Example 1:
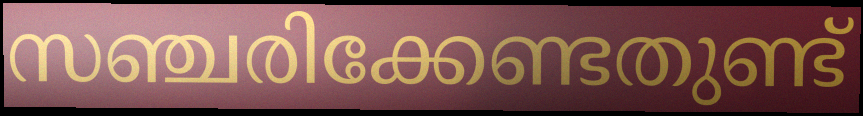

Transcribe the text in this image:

സഞ്ചരിക്കേണ്ടതുണ്ട്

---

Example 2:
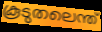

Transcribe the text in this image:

കൂടുതലെന്ത്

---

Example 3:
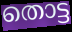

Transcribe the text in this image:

തൊട്ട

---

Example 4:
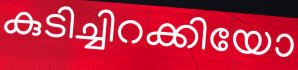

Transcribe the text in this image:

കുടിച്ചിറക്കിയോ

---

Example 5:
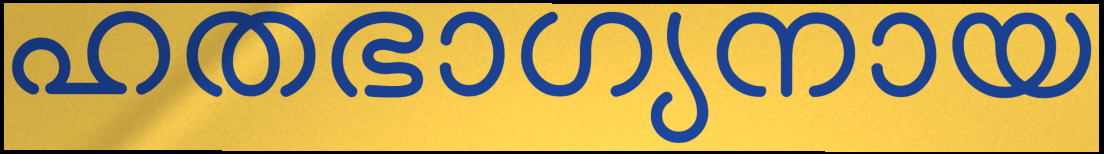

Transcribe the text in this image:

ഹതഭാഗ്യനായ